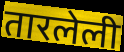
तारलेली